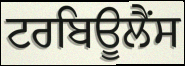
ਟਰਬਿਊਲੈਂਸ